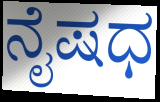
ನೈಷಧ